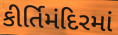
કીર્તિમંદિરમાં